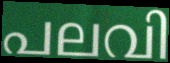
പലവി